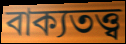
বাক্যতত্ত্ব